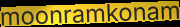
moonramkonam